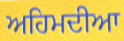
ਅਹਿਮਦੀਆ